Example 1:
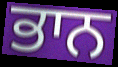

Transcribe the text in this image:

ਭਾਨ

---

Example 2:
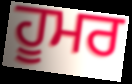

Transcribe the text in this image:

ਹੂਮਰ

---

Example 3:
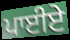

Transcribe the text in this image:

ਪਾਈਏ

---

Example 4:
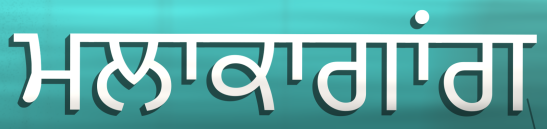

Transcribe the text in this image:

ਮਲਾਕਾਗਾਂਗ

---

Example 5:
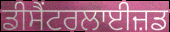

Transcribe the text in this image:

ਡੀਸੈਂਟਰਲਾਈਜ਼ਡ